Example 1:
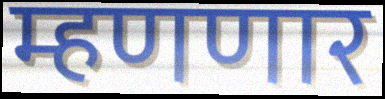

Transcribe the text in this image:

म्हणणार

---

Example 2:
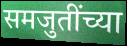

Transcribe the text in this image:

समजुतींच्या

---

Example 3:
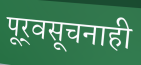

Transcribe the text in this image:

पूर्वसूचनाही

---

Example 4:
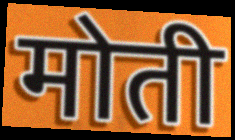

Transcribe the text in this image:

मोती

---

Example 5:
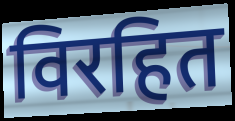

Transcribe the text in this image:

विरहित